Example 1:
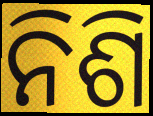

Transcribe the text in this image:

ନିଶି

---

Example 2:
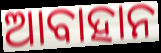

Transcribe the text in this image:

ଆବାହାନ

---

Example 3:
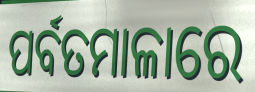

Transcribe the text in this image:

ପର୍ବତମାଳାରେ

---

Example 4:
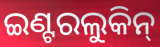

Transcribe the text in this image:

ଇଣ୍ଟରଲୁକିନ୍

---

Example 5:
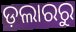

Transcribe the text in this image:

ଡ଼ଲାରରୁ